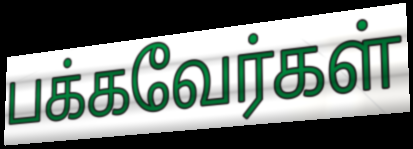
பக்கவேர்கள்